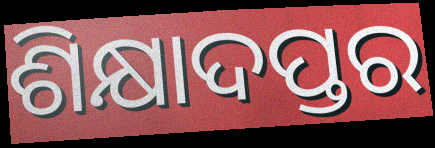
ଶିକ୍ଷାଦପ୍ତର